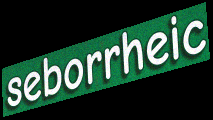
seborrheic